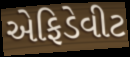
એફિડેવીટ